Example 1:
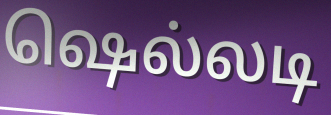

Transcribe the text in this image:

ஷெல்லடி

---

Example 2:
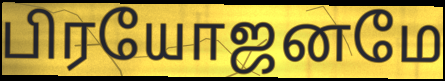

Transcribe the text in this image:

பிரயோஜனமே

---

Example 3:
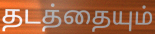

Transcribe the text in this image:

தடத்தையும்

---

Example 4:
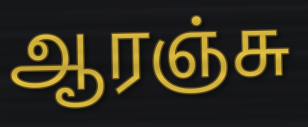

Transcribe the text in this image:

ஆரஞ்சு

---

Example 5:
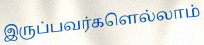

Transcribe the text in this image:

இருப்பவர்களெல்லாம்